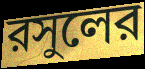
রসুলের